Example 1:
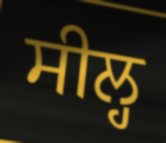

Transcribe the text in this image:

ਸੀਲ੍ਹ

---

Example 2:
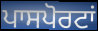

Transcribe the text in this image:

ਪਾਸਪੋਰਟਾਂ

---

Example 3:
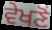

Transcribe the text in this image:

ਵੇਖਣੋਂ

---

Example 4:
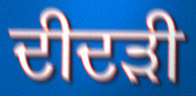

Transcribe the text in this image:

ਦੀਦੜੀ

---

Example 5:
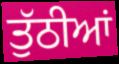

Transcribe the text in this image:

ਤੁੱਠੀਆਂ